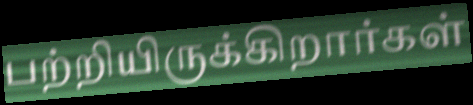
பற்றியிருக்கிறார்கள்